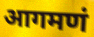
आगमणं